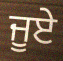
ਜੂਏ